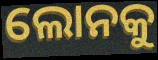
ଲୋନକୁ